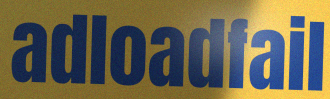
adloadfail